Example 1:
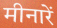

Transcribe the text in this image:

मीनारें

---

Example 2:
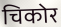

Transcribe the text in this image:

चिकोर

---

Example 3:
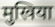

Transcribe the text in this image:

मुखिया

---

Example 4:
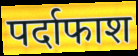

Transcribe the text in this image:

पर्दाफाश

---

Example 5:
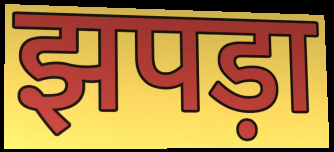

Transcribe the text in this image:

झपड़ा